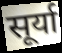
सूर्या